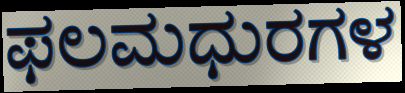
ಫಲಮಧುರಗಳ